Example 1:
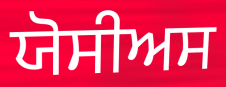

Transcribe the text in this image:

ਯੋਸੀਅਸ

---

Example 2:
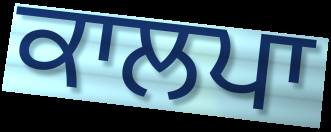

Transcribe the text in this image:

ਕਾਲਪਾ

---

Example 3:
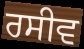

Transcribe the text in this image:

ਰਸੀਵ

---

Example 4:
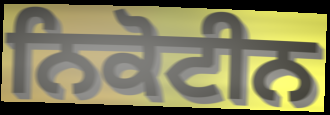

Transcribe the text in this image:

ਨਿਕੋਟੀਨ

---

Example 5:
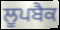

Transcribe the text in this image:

ਲੂਪਬੈਕ